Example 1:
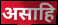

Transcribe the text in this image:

असाहि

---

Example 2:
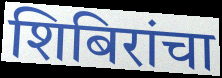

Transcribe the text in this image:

शिबिरांचा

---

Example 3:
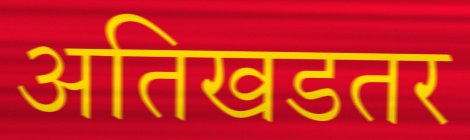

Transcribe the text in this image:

अतिखडतर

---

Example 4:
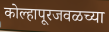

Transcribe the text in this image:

कोल्हापूरजवळच्या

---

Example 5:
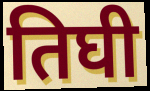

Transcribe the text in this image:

तिघी